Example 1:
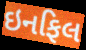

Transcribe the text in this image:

ઇનફિલ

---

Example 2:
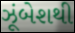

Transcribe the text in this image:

ઝૂંબેશથી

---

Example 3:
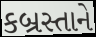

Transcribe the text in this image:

કબ્રસ્તાને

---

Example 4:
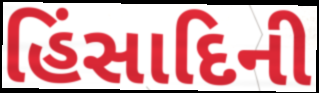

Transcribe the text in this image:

હિંસાદિની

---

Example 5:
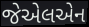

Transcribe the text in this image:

જેએલએન